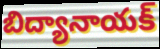
బిద్యానాయక్